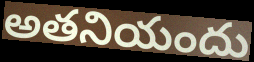
అతనియందు